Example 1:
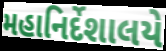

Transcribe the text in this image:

મહાનિર્દેશાલયે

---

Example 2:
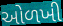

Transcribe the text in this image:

ઓળખી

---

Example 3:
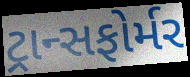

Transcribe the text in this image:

ટ્રાન્સફોર્મર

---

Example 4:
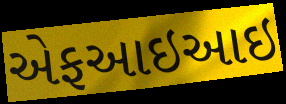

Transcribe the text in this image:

એફઆઇઆઇ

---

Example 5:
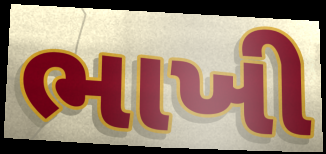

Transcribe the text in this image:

ભાખી